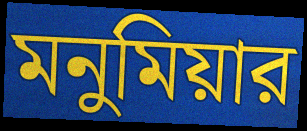
মনুমিয়ার